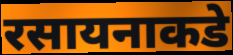
रसायनाकडे